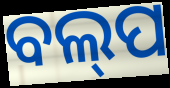
ବଲ୍‍ପ